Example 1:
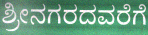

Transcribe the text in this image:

ಶ್ರೀನಗರದವರೆಗೆ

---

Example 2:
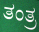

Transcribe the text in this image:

ತಂತ್ರ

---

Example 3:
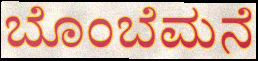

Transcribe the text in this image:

ಬೊಂಬೆಮನೆ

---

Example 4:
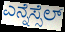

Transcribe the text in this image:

ಎನ್ನೆಸ್ಸೆಲ್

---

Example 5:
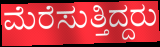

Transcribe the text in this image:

ಮೆರೆಸುತ್ತಿದ್ದರು